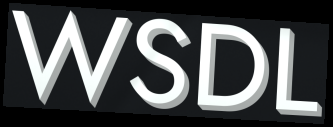
WSDL